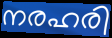
നരഹരി